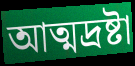
আত্মদ্রষ্টা